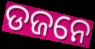
ଡଜନେ